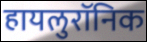
हायलुरॉनिक